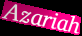
Azariah